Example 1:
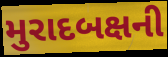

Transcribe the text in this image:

મુરાદબક્ષની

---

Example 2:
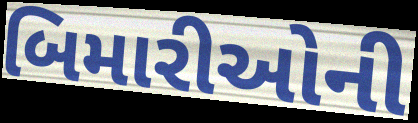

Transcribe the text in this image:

બિમારીઓની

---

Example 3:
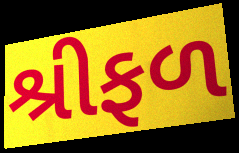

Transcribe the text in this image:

શ્રીફળ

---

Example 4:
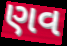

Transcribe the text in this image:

ણવ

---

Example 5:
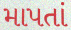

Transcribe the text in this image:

માપતાં